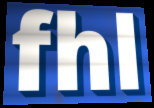
fhl